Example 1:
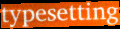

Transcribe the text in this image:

typesetting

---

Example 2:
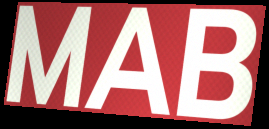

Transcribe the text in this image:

MAB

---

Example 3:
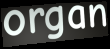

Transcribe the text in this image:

organ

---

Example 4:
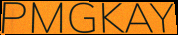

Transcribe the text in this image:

PMGKAY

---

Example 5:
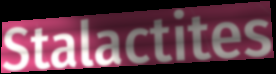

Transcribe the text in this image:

Stalactites